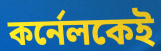
কর্নেলকেই